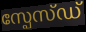
സ്പേസ്ഡ്